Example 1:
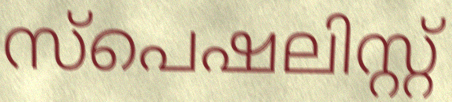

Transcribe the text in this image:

സ്പെഷലിസ്റ്റ്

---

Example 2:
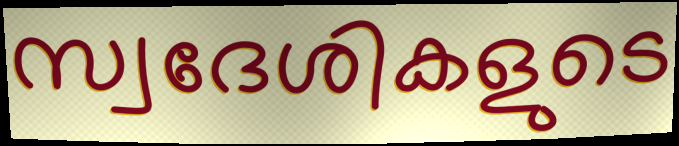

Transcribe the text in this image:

സ്വദേശികളുടെ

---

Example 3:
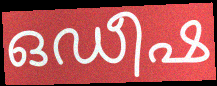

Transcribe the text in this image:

ഒഡീഷ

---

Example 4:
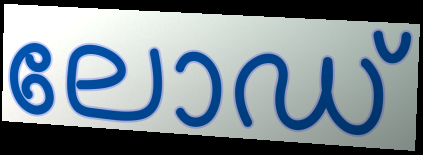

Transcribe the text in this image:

ലോഡ്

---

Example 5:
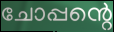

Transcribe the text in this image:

ചോപ്പന്റെ